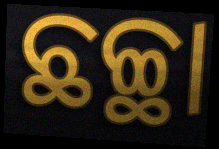
ଛଚ୍ଛା